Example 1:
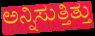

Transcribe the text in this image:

ಅನ್ನಿಸುತ್ತಿತ್ತು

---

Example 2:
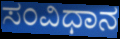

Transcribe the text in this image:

ಸಂವಿಧಾನ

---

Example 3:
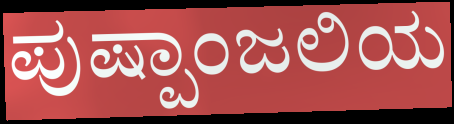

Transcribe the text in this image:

ಪುಷ್ಪಾಂಜಲಿಯ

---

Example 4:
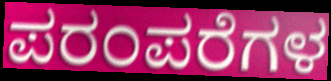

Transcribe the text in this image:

ಪರಂಪರೆಗಳ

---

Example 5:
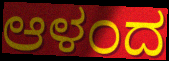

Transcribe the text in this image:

ಆಳಂದ